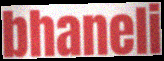
bhaneli